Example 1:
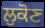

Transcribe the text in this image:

ਲੁਕੋਣ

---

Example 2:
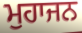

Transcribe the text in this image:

ਮੁਹਾਜਨ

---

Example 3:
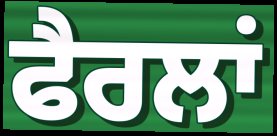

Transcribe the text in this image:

ਫੈਰਲਾਂ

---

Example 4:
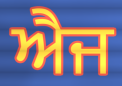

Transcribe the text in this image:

ਐਜ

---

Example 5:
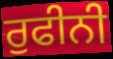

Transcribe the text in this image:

ਰੁਫੀਨੀ